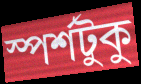
স্পর্শটুকু